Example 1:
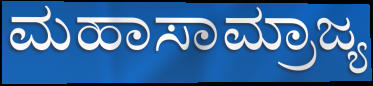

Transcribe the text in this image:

ಮಹಾಸಾಮ್ರಾಜ್ಯ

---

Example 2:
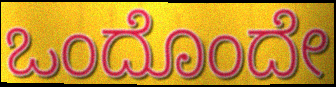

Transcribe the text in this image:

ಒಂದೊಂದೇ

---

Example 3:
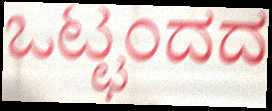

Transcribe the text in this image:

ಒಟ್ಟಂದದ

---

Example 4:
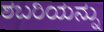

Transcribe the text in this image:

ಶಬರಿಯನ್ನು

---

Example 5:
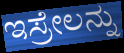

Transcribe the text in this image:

ಇಸ್ರೇಲನ್ನು